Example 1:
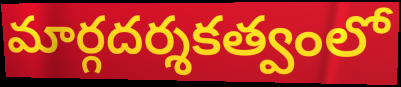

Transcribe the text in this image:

మార్గదర్శకత్వంలో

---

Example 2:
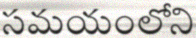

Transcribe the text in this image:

సమయంలోని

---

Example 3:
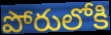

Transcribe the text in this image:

పోరులోకి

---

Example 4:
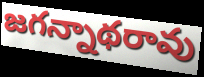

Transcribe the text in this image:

జగన్నాథరావు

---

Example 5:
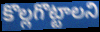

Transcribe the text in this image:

కొల్లగొట్టాలని